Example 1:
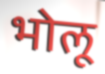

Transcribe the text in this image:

भोलू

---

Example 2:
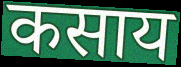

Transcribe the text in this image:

कसाय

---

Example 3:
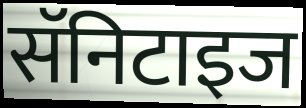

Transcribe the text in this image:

सॅनिटाइज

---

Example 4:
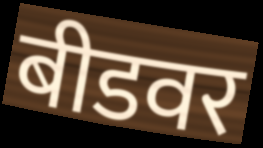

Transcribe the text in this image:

बीडवर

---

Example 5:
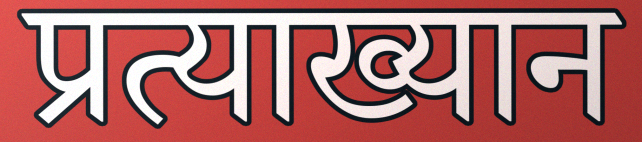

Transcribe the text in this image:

प्रत्याख्यान